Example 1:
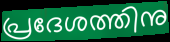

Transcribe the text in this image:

പ്രദേശത്തിനു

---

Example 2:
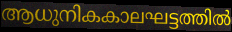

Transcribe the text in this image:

ആധുനികകാലഘട്ടത്തിൽ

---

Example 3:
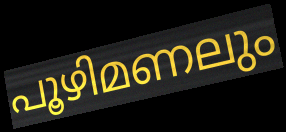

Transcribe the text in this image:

പൂഴിമണലും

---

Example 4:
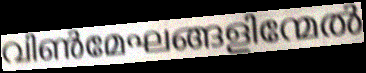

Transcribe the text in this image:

വിൺമേഘങ്ങളിന്മേൽ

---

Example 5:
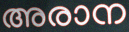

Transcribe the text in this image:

അരാന